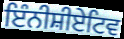
ਇੰਨੀਸ਼ੀਏਟਿਵ